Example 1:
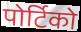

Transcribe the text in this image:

पोर्टिको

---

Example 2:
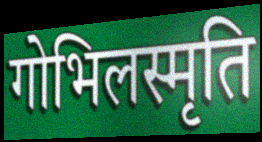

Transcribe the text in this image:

गोभिलस्मृति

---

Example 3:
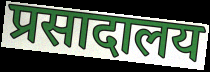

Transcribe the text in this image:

प्रसादालय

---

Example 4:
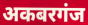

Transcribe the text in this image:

अकबरगंज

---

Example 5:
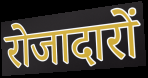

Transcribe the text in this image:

रोजादारों